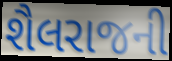
શૈલરાજની